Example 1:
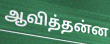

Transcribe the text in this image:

ஆவித்தன்ன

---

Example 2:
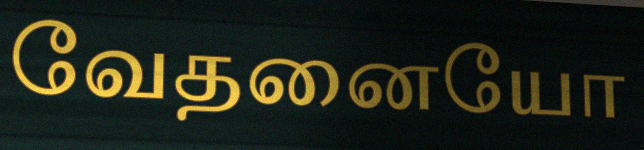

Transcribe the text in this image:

வேதனையோ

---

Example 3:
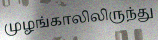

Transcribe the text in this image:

முழங்காலிலிருந்து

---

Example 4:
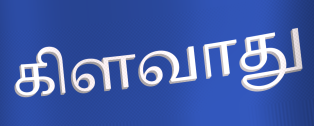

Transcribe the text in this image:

கிளவாது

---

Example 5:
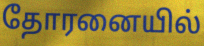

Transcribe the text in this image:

தோரனையில்